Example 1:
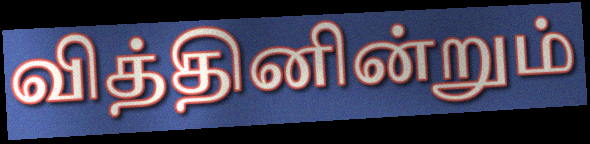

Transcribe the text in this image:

வித்தினின்றும்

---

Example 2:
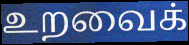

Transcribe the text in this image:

உறவைக்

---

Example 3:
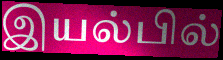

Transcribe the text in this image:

இயல்பில்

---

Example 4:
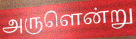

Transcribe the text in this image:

அருளென்று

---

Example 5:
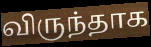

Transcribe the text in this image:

விருந்தாக